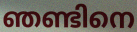
ഞണ്ടിനെ